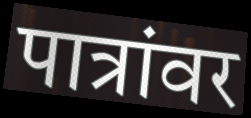
पात्रांवर